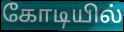
கோடியில்